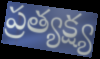
ప్రత్యక్ష్య